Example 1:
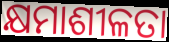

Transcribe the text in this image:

କ୍ଷମାଶୀଳତା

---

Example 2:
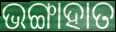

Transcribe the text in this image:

ଭଙ୍ଗାହାତ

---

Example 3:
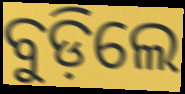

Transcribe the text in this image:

ବୁଡ଼ିଲେ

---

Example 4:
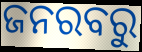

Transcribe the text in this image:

ଜନରବରୁ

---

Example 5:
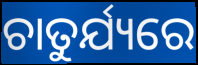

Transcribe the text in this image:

ଚାତୁର୍ଯ୍ୟରେ